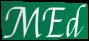
MEd